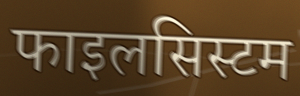
फाइलसिस्टम